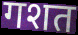
गशत